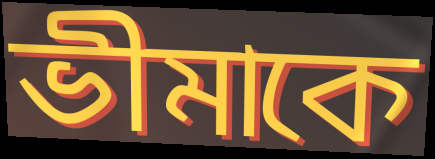
ভীমাকে